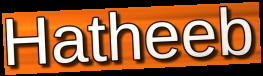
Hatheeb